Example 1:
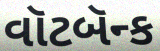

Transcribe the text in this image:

વૉટબૅન્ક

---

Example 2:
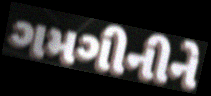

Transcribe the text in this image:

ગમગીનીને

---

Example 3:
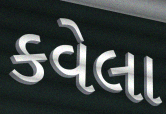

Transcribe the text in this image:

કવેલા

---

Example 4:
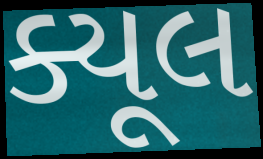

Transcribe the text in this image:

ક્યૂલ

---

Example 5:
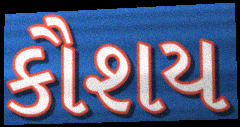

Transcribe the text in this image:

કૌશય